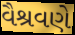
વૈશ્રવણે